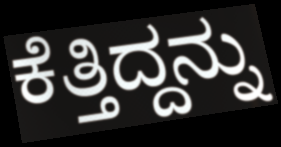
ಕೆತ್ತಿದ್ದನ್ನು